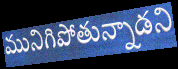
మునిగిపోతున్నాడని